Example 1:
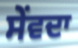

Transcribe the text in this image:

ਸੇਂਵਦਾ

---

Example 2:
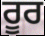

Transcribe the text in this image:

ਰੂਰ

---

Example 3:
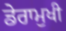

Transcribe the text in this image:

ਡੇਰਾਮੁਖੀ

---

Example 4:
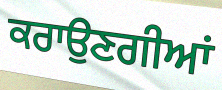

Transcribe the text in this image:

ਕਰਾਉਣਗੀਆਂ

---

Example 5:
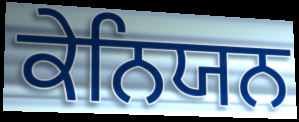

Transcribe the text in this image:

ਕੇਨਿਯਨ